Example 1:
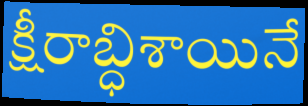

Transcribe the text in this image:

క్షీరాబ్ధిశాయినే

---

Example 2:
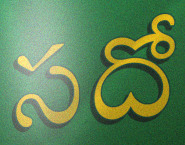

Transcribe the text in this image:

సదో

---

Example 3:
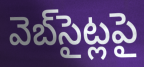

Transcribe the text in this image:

వెబ్‌సైట్లపై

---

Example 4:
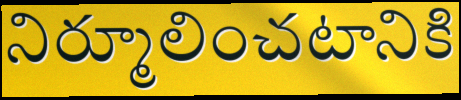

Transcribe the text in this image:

నిర్మూలించటానికి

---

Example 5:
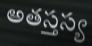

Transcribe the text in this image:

అతస్తస్య